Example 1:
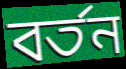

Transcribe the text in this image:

বৰ্তন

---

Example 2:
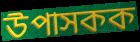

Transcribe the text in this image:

উপাসকক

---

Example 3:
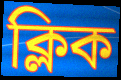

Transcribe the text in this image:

ক্লিক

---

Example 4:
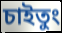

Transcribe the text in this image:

চাইতুং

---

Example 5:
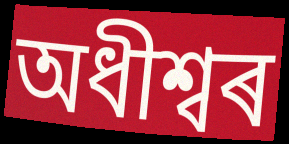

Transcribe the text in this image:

অধীশ্বৰ